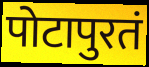
पोटापुरतं